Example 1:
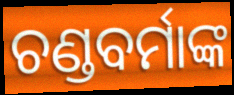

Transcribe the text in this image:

ଚଣ୍ଡବର୍ମାଙ୍କ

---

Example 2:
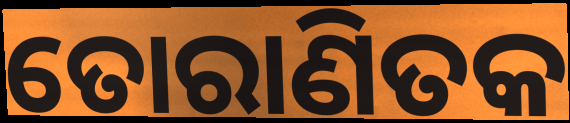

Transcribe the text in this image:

ତୋରାଣିତକ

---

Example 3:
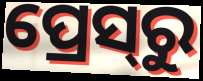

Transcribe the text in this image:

ପ୍ରେସ୍‍ରୁ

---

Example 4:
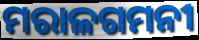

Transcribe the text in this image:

ମରାଳଗମନୀ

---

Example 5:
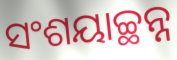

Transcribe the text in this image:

ସଂଶୟାଚ୍ଛନ୍ନ